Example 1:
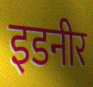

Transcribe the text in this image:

इडनीर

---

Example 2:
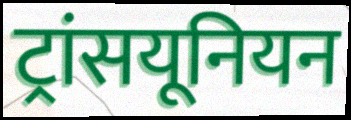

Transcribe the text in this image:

ट्रांसयूनियन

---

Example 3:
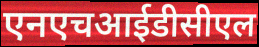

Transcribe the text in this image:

एनएचआईडीसीएल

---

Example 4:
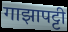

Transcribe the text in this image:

गाझापट्टी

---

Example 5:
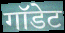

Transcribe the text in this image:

गॉडेट